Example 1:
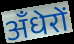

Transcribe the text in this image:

अँधेरों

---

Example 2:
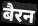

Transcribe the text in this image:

बैरन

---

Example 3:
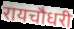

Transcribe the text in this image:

रायचौधरी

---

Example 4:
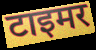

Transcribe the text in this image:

टाइमर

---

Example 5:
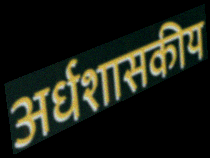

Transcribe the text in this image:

अर्धशासकीय